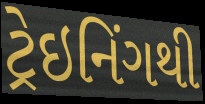
ટ્રેઇનિંગથી